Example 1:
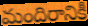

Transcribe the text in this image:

మందిరానికీ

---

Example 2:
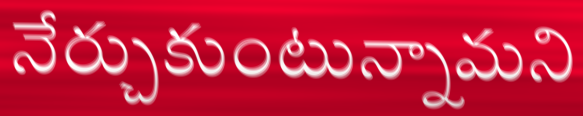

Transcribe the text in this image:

నేర్చుకుంటున్నామని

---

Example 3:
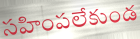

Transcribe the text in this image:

సహింపలేకుండ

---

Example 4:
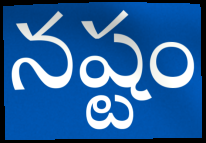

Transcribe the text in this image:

నష్టం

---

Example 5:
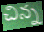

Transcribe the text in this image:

చిన్న